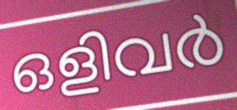
ഒളിവർ